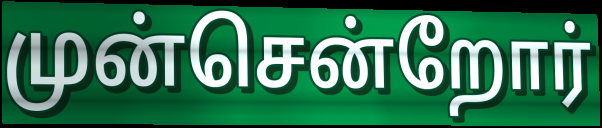
முன்சென்றோர்